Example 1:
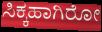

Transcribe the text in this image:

ಸಿಕ್ಕಹಾಗಿರೋ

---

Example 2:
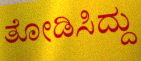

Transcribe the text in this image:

ತೋಡಿಸಿದ್ದು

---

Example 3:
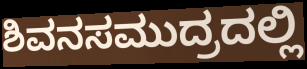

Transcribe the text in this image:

ಶಿವನಸಮುದ್ರದಲ್ಲಿ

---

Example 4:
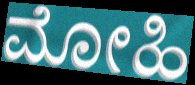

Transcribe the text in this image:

ಮೋಹಿ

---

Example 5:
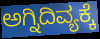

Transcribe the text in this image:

ಅಗ್ನಿದಿವ್ಯಕ್ಕೆ